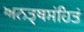
ਅਨਤ੍ਥਸਂਹਿਤਂ